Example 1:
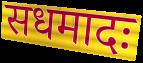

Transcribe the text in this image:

सधमादः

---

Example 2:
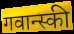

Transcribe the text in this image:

गवान्स्की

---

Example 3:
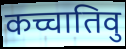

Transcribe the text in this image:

कच्चातिवु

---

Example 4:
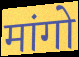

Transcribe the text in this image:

मांगो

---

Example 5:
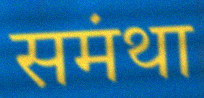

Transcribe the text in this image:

समंथा